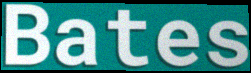
Bates